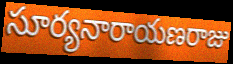
సూర్యనారాయణరాజు